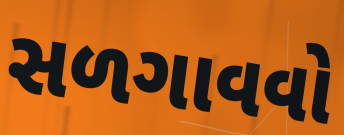
સળગાવવો